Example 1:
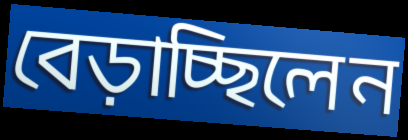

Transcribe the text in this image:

বেড়াচ্ছিলেন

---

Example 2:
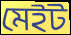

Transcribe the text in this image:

মেইট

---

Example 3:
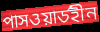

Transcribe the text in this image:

পাসওয়ার্ডহীন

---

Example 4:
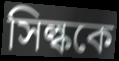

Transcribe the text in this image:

সিল্ককে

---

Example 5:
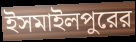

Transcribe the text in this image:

ইসমাইলপুরের